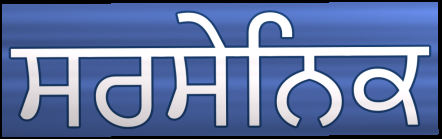
ਸਰਸੇਨਿਕ